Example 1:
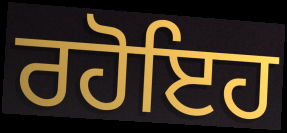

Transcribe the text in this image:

ਰਹੋਇਹ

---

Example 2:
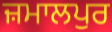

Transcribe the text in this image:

ਜ਼ਮਾਲਪੁਰ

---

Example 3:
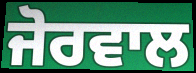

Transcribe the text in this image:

ਜੋਰਵਾਲ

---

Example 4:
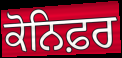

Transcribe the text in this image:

ਕੋਨਿਫ਼ਰ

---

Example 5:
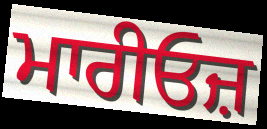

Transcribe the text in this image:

ਮਾਰੀਓਜ਼